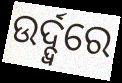
ଉର୍ଦ୍ଦ୍ୱରେ